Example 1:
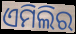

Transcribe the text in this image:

ଏମିଲିର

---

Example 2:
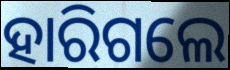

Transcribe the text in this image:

ହାରିଗଲେ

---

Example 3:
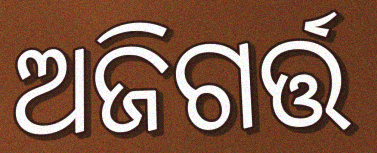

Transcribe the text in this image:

ଅଜିଗର୍ତ୍ତ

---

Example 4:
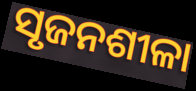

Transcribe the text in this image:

ସୃଜନଶୀଳା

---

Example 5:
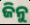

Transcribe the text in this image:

ଜିନୁ